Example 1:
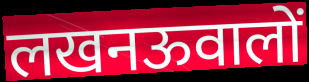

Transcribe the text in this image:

लखनऊवालों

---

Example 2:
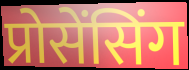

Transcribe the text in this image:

प्रोसेंसिंग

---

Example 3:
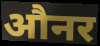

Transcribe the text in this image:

औनर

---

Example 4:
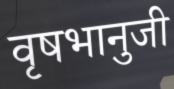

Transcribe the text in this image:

वृषभानुजी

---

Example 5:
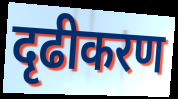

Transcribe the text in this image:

दृढीकरण